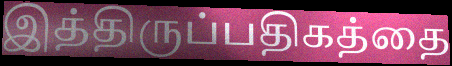
இத்திருப்பதிகத்தை